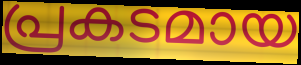
പ്രകടമായ